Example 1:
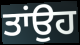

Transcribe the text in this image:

ਤਾਂਉਹ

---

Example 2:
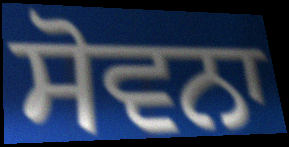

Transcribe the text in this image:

ਸੋਵਨਾ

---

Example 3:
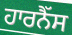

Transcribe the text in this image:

ਹਾਰਨੈੱਸ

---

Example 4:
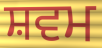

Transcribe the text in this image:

ਸ਼ਵਮ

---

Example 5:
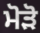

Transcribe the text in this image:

ਮੋੜੋ